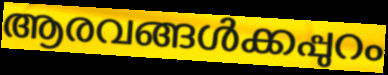
ആരവങ്ങൾക്കപ്പുറം